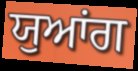
ਯੁਆਂਗ